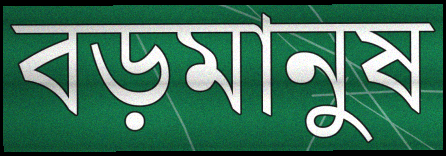
বড়মানুষ